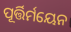
ପୂର୍ତ୍ତିର୍ମୟେନ